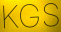
KGS